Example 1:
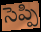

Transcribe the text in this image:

సెప్పి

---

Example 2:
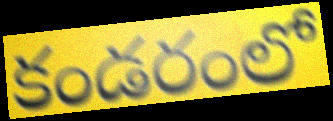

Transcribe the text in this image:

కండరంలో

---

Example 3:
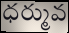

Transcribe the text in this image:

ధర్మువ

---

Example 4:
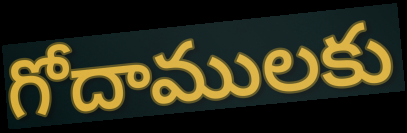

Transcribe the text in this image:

గోదాములకు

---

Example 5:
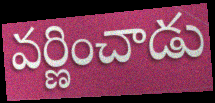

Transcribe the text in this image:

వర్ణించాడు